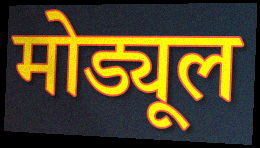
मोड्यूल